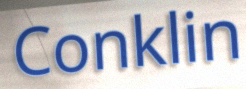
Conklin